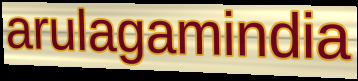
arulagamindia